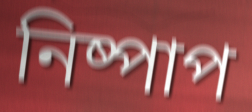
নিষ্পাপ